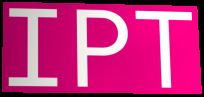
IPT